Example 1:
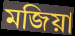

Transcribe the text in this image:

মজিয়া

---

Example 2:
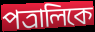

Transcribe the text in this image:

পত্রালিকে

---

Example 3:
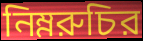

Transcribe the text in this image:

নিম্নরুচির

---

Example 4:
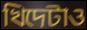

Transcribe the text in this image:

খিদেটাও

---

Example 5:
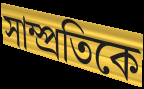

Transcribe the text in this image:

সাম্প্রতিকে